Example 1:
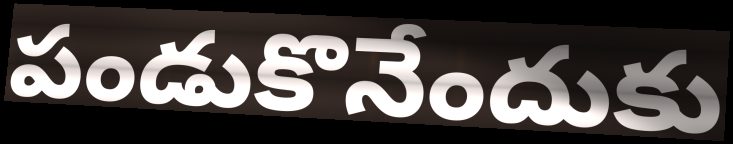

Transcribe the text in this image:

పండుకొనేందుకు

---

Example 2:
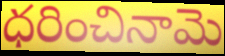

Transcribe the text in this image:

ధరించినామె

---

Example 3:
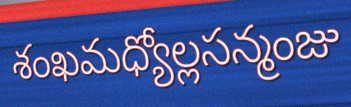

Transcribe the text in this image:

శంఖమధ్యోల్లసన్మంజు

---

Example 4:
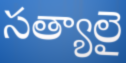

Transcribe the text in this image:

సత్యాలై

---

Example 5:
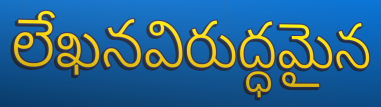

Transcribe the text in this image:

లేఖనవిరుద్ధమైన